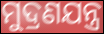
ମୁଦ୍ରଣଯନ୍ତ୍ର